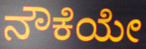
ನೌಕೆಯೇ